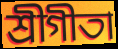
শ্রীগীতা